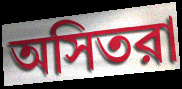
অসিতরা